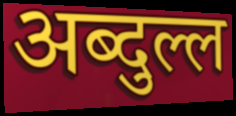
अब्दुल्ल